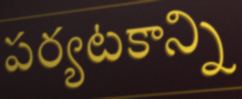
పర్యటకాన్ని